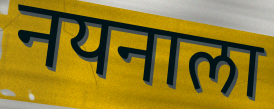
नयनाला